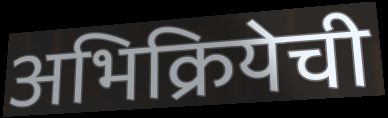
अभिक्रियेची